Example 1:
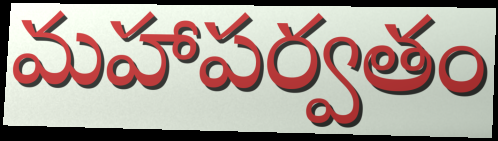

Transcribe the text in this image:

మహాపర్వతం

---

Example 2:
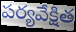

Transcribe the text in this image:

పర్యవేక్షిత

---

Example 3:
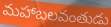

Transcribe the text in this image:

మహాబలవంతుడు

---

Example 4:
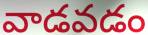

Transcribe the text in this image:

వాడవడం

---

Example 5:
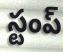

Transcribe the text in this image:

స్టంప్